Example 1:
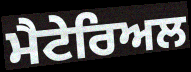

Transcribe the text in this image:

ਮੈਟੇਰਿਅਲ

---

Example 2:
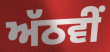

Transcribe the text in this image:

ਅੱਠਵੀੰ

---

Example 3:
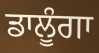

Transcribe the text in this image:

ਡਾਲੂੰਗਾ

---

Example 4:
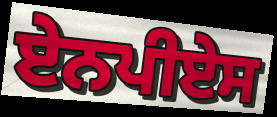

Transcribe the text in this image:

ਏਨਪੀਏਸ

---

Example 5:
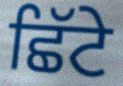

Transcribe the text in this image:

ਛਿੱਟੇ